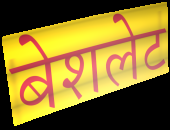
बेशलेट